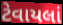
ટેવાયલાં